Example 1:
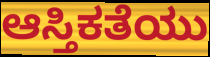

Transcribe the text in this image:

ಆಸ್ತಿಕತೆಯು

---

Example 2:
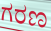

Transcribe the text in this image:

ಗರಣ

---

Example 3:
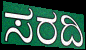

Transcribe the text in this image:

ಸರದಿ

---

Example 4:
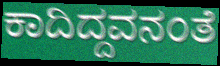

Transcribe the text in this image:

ಕಾದಿದ್ದವನಂತೆ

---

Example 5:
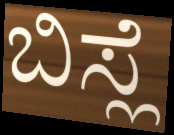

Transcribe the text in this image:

ಬಿಸ್ಲೆ